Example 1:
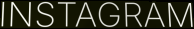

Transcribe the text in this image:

INSTAGRAM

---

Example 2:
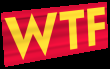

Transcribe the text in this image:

WTF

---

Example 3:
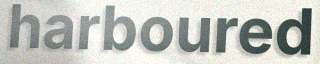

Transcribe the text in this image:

harboured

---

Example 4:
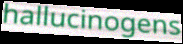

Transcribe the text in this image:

hallucinogens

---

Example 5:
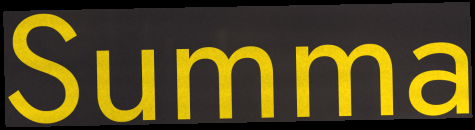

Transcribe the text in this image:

Summa